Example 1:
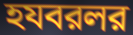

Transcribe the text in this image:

হযবরলর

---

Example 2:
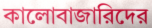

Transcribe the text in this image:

কালোবাজারিদের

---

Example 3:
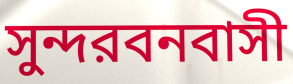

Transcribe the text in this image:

সুন্দরবনবাসী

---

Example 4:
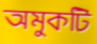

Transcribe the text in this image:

অমুকটি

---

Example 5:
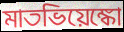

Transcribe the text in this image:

মাতভিয়েঙ্কো